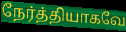
நேர்த்தியாகவே